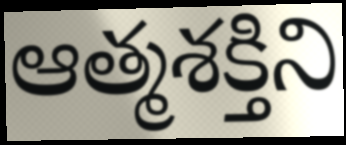
ఆత్మశక్తిని